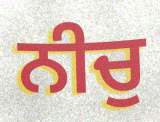
ਨੀਚੁ